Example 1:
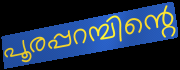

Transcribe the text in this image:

പൂരപ്പറമ്പിന്റെ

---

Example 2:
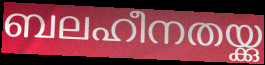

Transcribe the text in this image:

ബലഹീനതയ്ക്കു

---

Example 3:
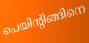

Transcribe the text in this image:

പെയിന്റിങ്ങിനെ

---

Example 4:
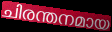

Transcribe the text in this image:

ചിരന്തനമായ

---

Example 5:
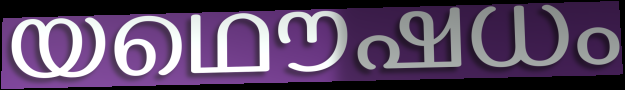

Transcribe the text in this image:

യഥൌഷധം